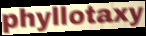
phyllotaxy